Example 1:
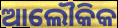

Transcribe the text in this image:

ଆଲୌକିକ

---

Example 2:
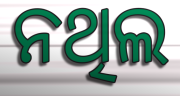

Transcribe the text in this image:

ନଥିଲ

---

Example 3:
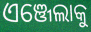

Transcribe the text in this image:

ଏଞ୍ଜେଲାକୁ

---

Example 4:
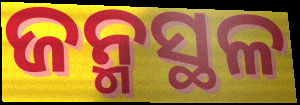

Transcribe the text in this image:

ଜନ୍ମସ୍ଥଳ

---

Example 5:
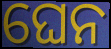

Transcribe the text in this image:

ଘେନ